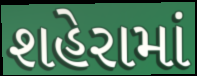
શહેરામાં